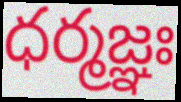
ధర్మజ్ఞః